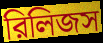
রিলিজস